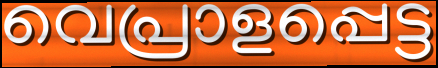
വെപ്രാളപ്പെട്ട